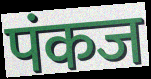
पंकज